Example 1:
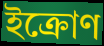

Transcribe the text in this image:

ইক্রোণ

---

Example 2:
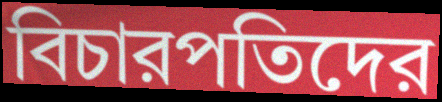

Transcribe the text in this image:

বিচারপতিদের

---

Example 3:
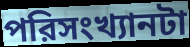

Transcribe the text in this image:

পরিসংখ্যানটা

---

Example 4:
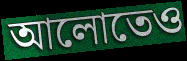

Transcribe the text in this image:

আলোতেও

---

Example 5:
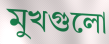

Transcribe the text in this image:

মুখগুলো